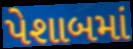
પેશાબમાં